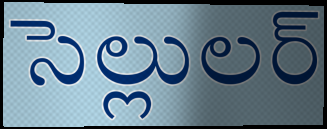
సెల్లులర్